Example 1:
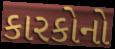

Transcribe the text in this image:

કારકોનો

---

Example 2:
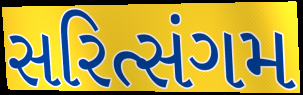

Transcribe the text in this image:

સરિત્સંગમ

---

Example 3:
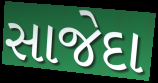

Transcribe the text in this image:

સાજેદા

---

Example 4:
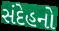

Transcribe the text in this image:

સંદેહનો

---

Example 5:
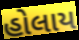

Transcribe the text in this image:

હોલાય